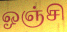
ஓஞ்சி